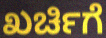
ಖರ್ಚಿಗೆ